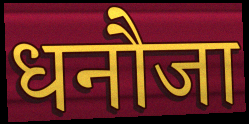
धनौजा